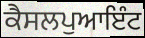
ਕੈਸਲਪੁਆਇੰਟ